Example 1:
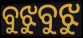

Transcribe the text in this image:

ବୁଝୁବୁଝୁ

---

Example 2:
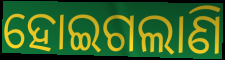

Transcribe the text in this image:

ହୋଇଗଲାଣି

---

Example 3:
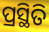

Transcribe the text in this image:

ପ୍ରସ୍ଥିତି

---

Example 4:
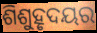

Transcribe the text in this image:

ଶିଶୁହୃଦୟର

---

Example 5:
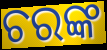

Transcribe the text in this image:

ଚରଙ୍କ